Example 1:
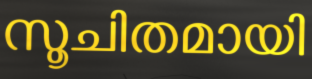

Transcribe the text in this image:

സൂചിതമായി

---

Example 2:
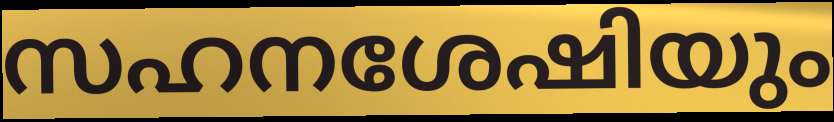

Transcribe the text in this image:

സഹനശേഷിയും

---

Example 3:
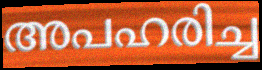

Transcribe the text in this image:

അപഹരിച്ച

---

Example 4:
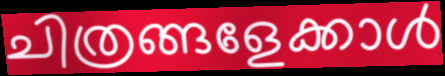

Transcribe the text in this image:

ചിത്രങ്ങളേക്കാൾ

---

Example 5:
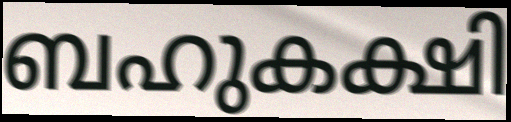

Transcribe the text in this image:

ബഹുകക്ഷി